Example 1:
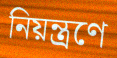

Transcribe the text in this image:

নিয়ন্ত্ৰণে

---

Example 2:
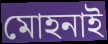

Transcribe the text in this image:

মোহনাই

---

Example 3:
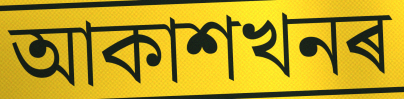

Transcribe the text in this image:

আকাশখনৰ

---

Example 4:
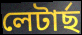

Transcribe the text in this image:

লেটাৰ্ছ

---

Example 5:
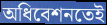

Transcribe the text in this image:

অধিবেশনতেই